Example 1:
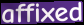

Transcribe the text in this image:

affixed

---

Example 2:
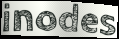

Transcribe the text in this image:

inodes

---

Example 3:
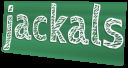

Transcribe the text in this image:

jackals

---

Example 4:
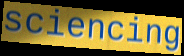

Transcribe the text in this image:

sciencing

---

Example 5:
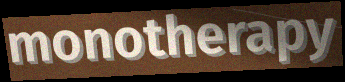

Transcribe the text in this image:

monotherapy